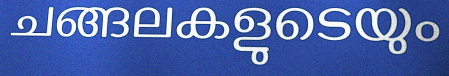
ചങ്ങലകളുടെയും